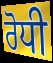
ਰੋਧੀ